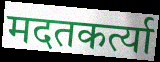
मदतकर्त्या